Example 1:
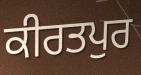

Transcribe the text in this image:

ਕੀਰਤਪੁਰ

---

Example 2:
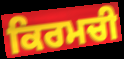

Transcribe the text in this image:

ਕਿਰਮਚੀ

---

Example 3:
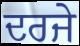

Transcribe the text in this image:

ਦਰਜੇ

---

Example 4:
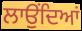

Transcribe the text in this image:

ਲਾਉਂਦਿਆਂ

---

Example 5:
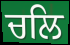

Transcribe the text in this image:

ਚਲਿ